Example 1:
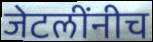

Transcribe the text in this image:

जेटलींनीच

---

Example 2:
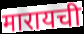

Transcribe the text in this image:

मारायची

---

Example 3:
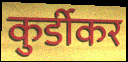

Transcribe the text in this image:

कुर्डीकर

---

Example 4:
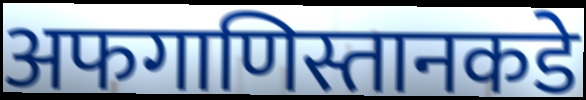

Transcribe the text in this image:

अफगाणिस्तानकडे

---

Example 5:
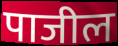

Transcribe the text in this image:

पाजील